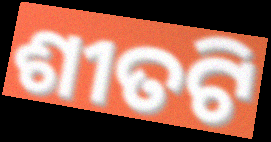
ଶୀତଟି